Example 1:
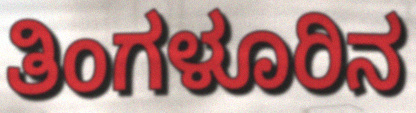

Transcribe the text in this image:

ತಿಂಗಳೂರಿನ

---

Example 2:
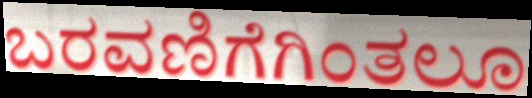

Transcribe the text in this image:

ಬರವಣಿಗೆಗಿಂತಲೂ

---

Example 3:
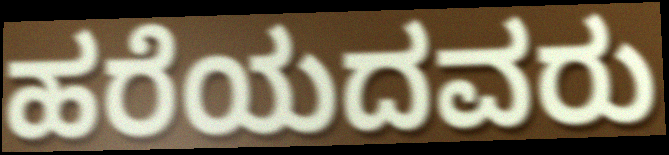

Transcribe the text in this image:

ಹರೆಯದವರು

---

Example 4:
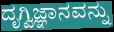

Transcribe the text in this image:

ದೃಗ್ವಿಜ್ಞಾನವನ್ನು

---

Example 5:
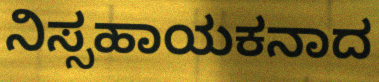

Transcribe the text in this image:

ನಿಸ್ಸಹಾಯಕನಾದ